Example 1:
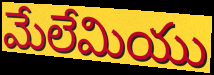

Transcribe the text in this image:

మేలేమియు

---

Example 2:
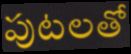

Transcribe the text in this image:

పుటలతో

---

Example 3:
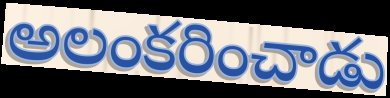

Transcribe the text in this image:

అలంకరించాడు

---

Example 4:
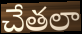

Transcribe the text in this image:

చేతలా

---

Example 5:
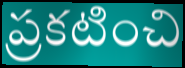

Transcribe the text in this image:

ప్రకటించి